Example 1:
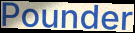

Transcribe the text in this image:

Pounder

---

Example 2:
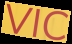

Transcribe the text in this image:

VIC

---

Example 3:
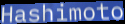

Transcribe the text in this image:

Hashimoto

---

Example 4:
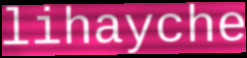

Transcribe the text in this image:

lihayche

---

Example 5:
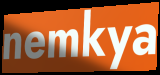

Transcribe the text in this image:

nemkya